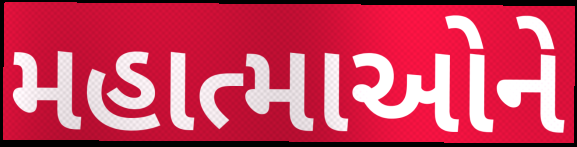
મહાત્માઓને